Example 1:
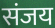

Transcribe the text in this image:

संजय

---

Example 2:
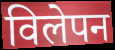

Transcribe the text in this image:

विलेपन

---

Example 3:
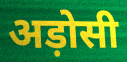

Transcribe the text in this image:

अड़ोसी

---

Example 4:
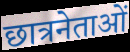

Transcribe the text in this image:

छात्रनेताओं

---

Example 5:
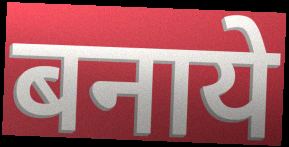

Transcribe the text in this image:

बनाये